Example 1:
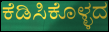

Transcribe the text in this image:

ಕೆಡಿಸಿಕೊಳ್ಳದ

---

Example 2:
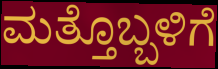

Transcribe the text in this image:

ಮತ್ತೊಬ್ಬಳಿಗೆ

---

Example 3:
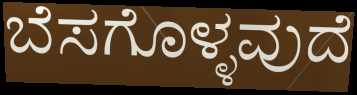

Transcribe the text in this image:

ಬೆಸಗೊಳ್ಳವುದೆ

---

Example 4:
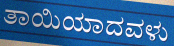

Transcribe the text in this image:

ತಾಯಿಯಾದವಳು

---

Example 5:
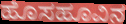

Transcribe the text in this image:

ಹೊಸಹೂವಿನ